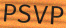
PSVP